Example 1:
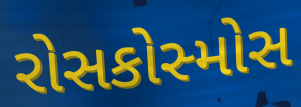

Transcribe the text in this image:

રોસકોસ્મોસ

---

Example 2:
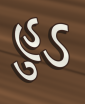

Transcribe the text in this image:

હુડ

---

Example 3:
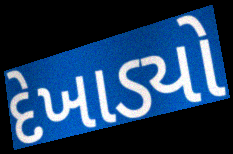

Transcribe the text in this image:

દેખાડ્યો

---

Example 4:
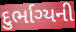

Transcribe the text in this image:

દુર્ભાગ્યની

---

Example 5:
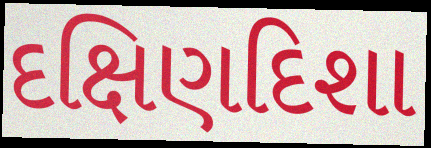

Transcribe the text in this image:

દક્ષિણદિશા